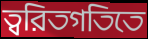
ত্বরিতগতিতে